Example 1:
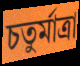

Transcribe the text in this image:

চতুর্মাত্রা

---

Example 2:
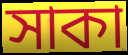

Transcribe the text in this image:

সাকা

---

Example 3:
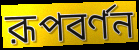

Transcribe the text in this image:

রূপবর্ণন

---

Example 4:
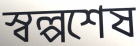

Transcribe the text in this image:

স্বল্পশেষ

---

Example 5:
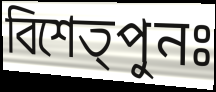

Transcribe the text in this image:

বিশেত্পুনঃ